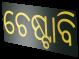
ଚେଷ୍ଟାବି